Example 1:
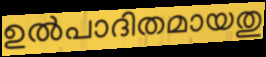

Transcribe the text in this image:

ഉൽപാദിതമായതു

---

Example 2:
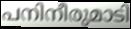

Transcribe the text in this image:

പനിനീരുമാടി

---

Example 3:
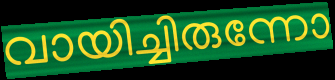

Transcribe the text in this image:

വായിച്ചിരുന്നോ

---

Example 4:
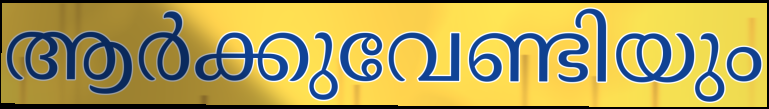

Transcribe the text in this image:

ആർക്കുവേണ്ടിയും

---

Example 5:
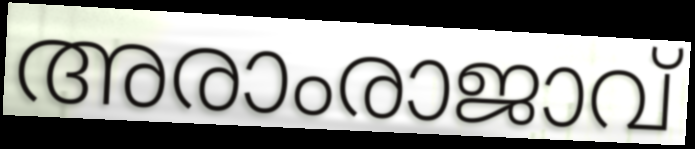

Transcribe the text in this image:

അരാംരാജാവ്